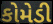
કોમેડી